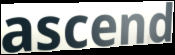
ascend